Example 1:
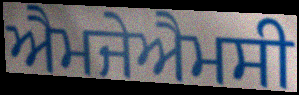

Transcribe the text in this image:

ਐਮਜੇਐਮਸੀ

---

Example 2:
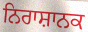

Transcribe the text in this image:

ਨਿਰਾਸ਼ਾਨਕ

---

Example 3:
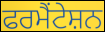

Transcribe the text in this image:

ਫਰਮੈਂਟੇਸ਼ਨ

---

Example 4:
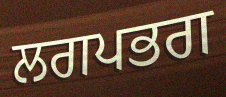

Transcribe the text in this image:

ਲਗਪਭਗ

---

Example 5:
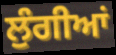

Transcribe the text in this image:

ਲੁੰਗੀਆਂ